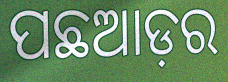
ପଛଆଡ଼ର